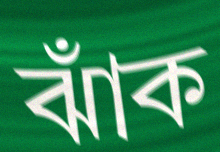
ঝাঁক